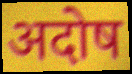
अदोष